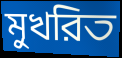
মুখরিত